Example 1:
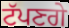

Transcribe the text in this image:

ਟੱਪਣਗੇ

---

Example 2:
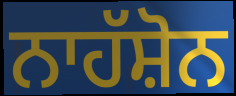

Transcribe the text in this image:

ਨਾਹੱਸ਼ੋਨ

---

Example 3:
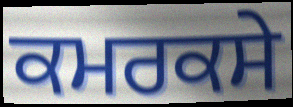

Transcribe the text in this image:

ਕਮਰਕਸੇ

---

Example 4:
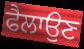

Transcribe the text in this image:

ਫੈਲਾਉਣ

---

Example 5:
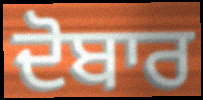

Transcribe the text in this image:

ਦੋਬਾਰ